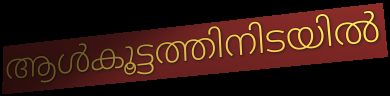
ആൾകൂട്ടത്തിനിടയിൽ